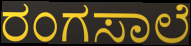
ರಂಗಸಾಲೆ